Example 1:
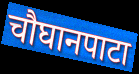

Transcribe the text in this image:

चौघानपाटा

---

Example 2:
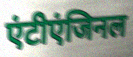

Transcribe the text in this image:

एंटीएंजिनल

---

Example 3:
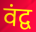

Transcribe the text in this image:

वंद्व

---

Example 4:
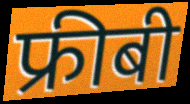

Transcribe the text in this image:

फ्रीबी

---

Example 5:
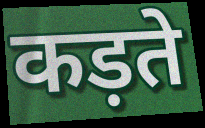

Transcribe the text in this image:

कड़ते